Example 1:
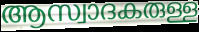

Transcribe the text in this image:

ആസ്വാദകരുള്ള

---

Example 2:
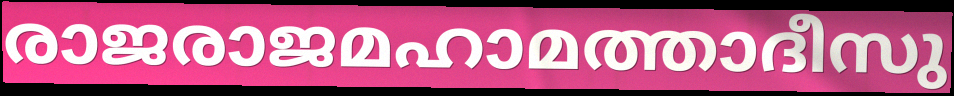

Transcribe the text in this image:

രാജരാജമഹാമത്താദീസു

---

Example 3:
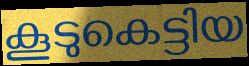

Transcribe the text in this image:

കൂടുകെട്ടിയ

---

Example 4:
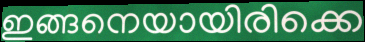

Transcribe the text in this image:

ഇങ്ങനെയായിരിക്കെ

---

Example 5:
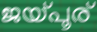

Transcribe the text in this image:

ജയ്പൂര്